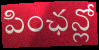
పింఛన్లో